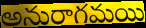
అనురాగమయి